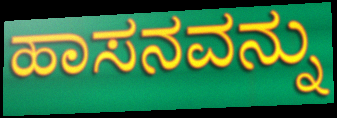
ಹಾಸನವನ್ನು